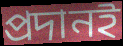
প্রদানই